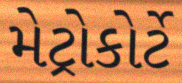
મેટ્રોકોર્ટે